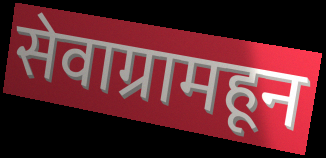
सेवाग्रामहून